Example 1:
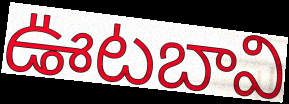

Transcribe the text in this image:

ఊటబావి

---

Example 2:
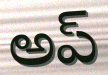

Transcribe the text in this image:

అప్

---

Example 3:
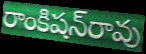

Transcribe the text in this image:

రాంకిషన్‌రావు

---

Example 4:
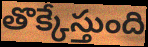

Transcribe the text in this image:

తొక్కేస్తుంది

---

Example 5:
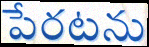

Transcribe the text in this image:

పేరటను